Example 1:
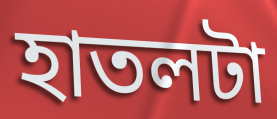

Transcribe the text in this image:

হাতলটা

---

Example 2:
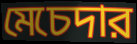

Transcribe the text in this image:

মেচেদার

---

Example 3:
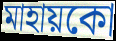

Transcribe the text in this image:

মাহায়কো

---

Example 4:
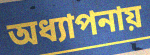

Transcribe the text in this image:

অধ্যাপনায়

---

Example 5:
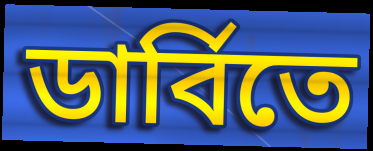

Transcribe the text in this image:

ডার্বিতে